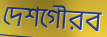
দেশগৌরব